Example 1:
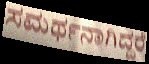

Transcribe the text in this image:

ಸಮರ್ಥನಾಗಿದ್ದರೆ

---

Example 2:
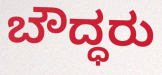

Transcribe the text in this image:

ಬೌದ್ಧರು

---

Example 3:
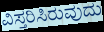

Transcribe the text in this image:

ವಿಸ್ತರಿಸಿರುವುದು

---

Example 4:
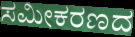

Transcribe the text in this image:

ಸಮೀಕರಣದ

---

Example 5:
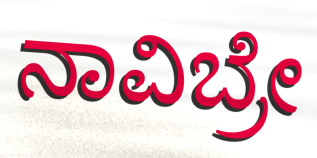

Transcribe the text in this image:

ನಾವಿಬ್ರೇ